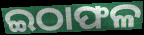
ଇଠାଫଳ